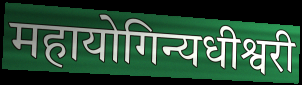
महायोगिन्यधीश्वरी